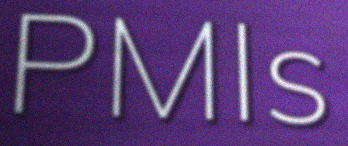
PMIs